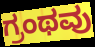
ಗ್ರಂಥವು